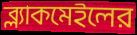
ব্ল্যাকমেইলের